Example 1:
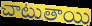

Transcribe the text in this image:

చాటుతాయి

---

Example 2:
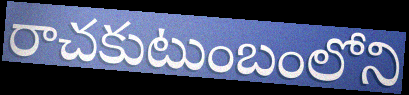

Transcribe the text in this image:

రాచకుటుంబంలోని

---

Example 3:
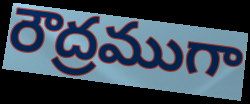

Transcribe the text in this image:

రౌద్రముగా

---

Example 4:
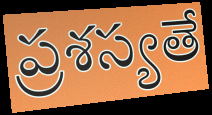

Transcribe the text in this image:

ప్రశస్యతే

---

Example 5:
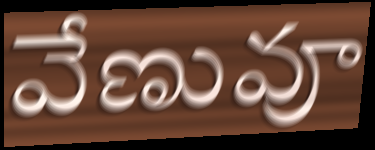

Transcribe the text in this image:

వేణువూ